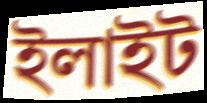
ইলাইট